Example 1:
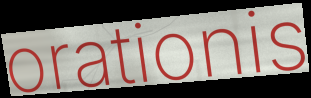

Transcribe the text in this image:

orationis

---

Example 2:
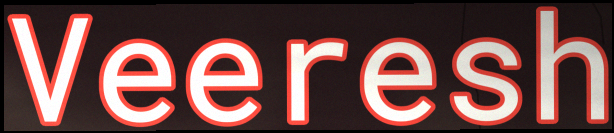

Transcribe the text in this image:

Veeresh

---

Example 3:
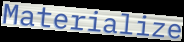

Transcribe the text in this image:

Materialize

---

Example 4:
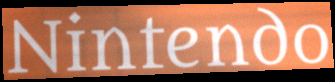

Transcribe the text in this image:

Nintendo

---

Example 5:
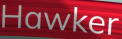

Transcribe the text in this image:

Hawker